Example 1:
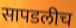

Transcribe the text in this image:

सापडलीच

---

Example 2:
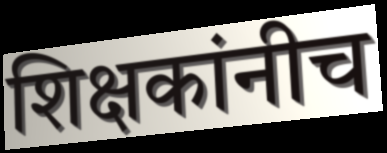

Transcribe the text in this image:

शिक्षकांनीच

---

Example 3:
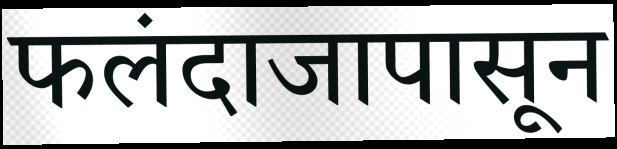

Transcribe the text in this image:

फलंदाजापासून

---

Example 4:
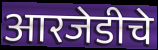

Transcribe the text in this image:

आरजेडीचे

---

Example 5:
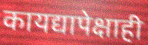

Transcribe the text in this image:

कायद्यापेक्षाही